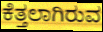
ಕೆತ್ತಲಾಗಿರುವ